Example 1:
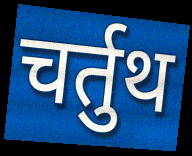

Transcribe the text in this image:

चर्तुथ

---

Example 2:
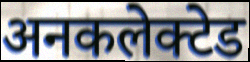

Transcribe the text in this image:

अनकलेक्टेड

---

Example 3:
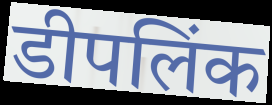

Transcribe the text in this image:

डीपलिंक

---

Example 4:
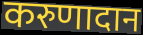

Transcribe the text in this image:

करुणादान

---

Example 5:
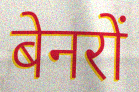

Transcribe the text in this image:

बेनरों